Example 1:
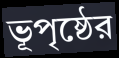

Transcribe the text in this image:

ভূপৃষ্ঠের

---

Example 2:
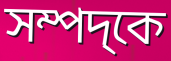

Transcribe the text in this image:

সম্পদ্‌কে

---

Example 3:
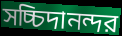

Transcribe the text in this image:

সচ্চিদানন্দর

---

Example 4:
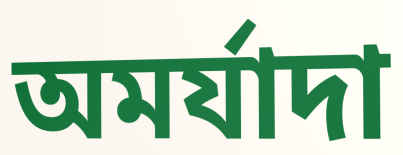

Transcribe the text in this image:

অমর্যাদা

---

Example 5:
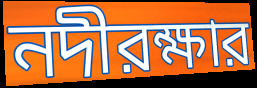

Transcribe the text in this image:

নদীরক্ষার